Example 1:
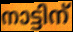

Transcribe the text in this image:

നാട്ടിന്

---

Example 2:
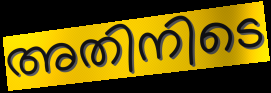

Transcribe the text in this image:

അതിനിടെ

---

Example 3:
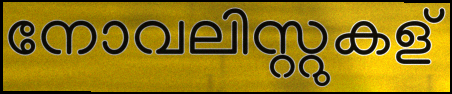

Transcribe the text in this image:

നോവലിസ്റ്റുകള്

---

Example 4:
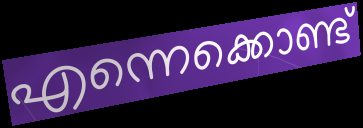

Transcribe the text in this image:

എന്നെക്കൊണ്ട്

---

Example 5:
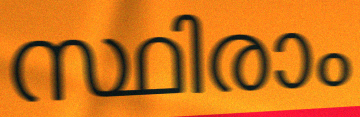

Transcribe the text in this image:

സ്ഥിരാം